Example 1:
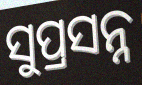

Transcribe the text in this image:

ସୁପ୍ରସନ୍ନ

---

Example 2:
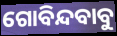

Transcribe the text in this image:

ଗୋବିନ୍ଦବାବୁ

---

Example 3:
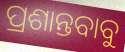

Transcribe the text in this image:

ପ୍ରଶାନ୍ତବାବୁ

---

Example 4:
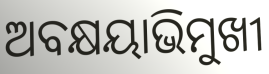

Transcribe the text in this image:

ଅବକ୍ଷୟାଭିମୁଖୀ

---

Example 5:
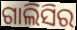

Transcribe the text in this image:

ଗାଲିସିର